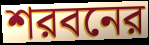
শরবনের